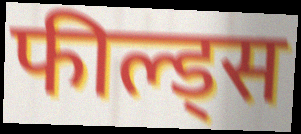
फील्ड्स